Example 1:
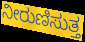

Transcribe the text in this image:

ನೀರುಣಿಸುತ್ತ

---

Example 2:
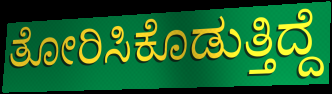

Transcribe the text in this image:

ತೋರಿಸಿಕೊಡುತ್ತಿದ್ದೆ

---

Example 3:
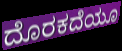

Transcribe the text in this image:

ದೊರಕದೆಯೂ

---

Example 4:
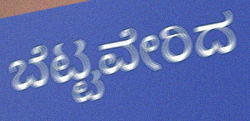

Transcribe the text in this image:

ಬೆಟ್ಟವೇರಿದ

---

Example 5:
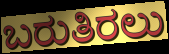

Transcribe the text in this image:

ಬರುತಿರಲು